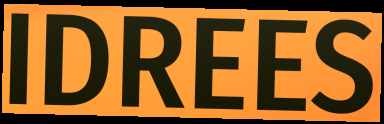
IDREES